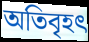
অতিবৃহৎ